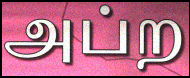
அப்ற